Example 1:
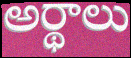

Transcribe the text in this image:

అర్థాలు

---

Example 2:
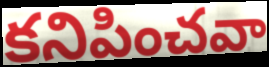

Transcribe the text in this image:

కనిపించవా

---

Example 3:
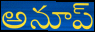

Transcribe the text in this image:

అనూప్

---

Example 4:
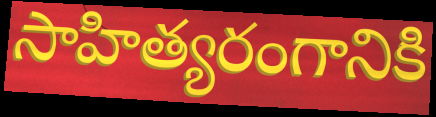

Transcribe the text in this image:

సాహిత్యరంగానికి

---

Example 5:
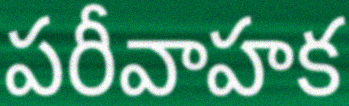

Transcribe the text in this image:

పరీవాహక